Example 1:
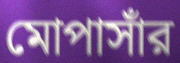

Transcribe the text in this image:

মোপাসাঁর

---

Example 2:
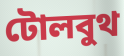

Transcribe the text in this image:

টোলবুথ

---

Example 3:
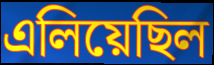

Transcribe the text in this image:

এলিয়েছিল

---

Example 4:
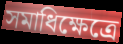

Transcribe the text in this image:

সমাধিক্ষেত্রে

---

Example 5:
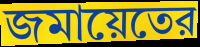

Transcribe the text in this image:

জমায়েতের